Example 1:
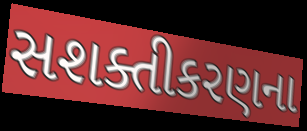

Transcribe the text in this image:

સશક્તીકરણના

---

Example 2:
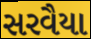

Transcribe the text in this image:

સરવૈયા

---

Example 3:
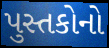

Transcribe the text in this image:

પુસ્તકોનો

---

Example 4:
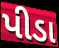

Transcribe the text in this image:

પીડા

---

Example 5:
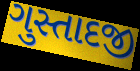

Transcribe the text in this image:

ગુસ્તાદજી